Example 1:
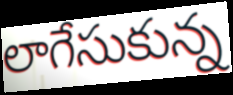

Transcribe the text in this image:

లాగేసుకున్న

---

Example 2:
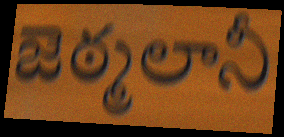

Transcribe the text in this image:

జెఠ్మలానీ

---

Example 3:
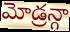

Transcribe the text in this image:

మోడ్రన్గా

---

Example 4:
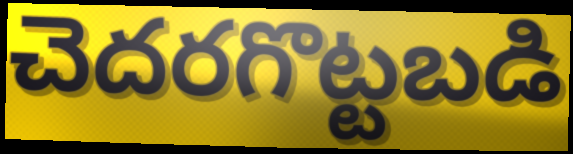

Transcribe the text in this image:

చెదరగొట్టబడి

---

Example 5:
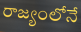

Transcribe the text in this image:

రాజ్యంలోనే